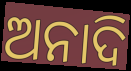
ଅନାଦି